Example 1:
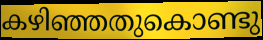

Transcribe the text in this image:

കഴിഞ്ഞതുകൊണ്ടു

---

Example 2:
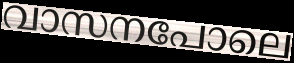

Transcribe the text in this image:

വാസനപോലെ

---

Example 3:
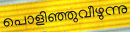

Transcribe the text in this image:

പൊളിഞ്ഞുവീഴുന്നു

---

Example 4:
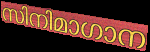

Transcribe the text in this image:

സിനിമാഗാന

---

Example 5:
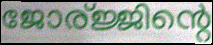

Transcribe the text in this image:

ജോര്ജ്ജിന്റെ